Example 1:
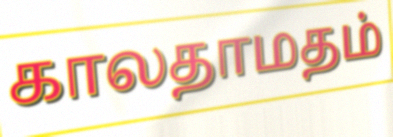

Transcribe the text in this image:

காலதாமதம்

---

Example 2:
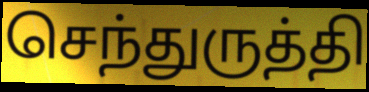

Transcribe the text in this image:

செந்துருத்தி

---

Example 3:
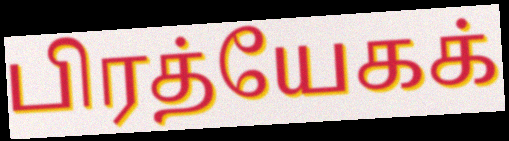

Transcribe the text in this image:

பிரத்யேகக்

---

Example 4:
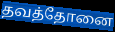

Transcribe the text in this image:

தவத்தோனை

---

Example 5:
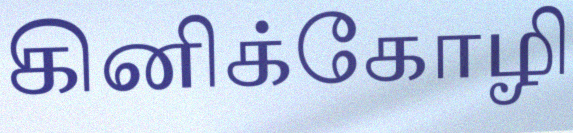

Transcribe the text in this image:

கினிக்கோழி